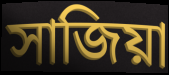
সাজিয়া